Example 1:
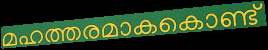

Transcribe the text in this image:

മഹത്തരമാകകൊണ്ട്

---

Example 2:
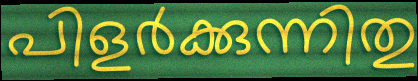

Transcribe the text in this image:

പിളർക്കുന്നിതു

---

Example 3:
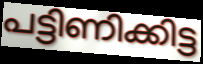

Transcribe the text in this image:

പട്ടിണിക്കിട്ട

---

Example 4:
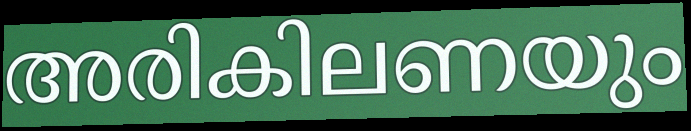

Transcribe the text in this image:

അരികിലണയും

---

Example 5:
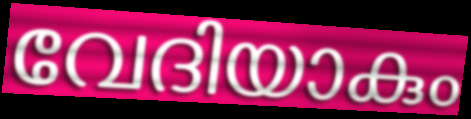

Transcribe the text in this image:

വേദിയാകും